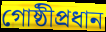
গোষ্ঠীপ্রধান